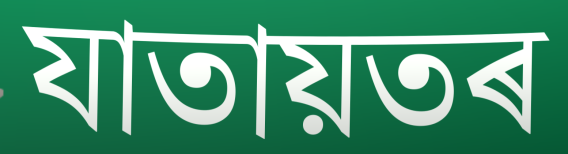
যাতায়তৰ